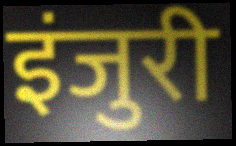
इंजुरी